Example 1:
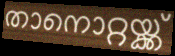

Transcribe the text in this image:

താനൊറ്റയ്ക്ക്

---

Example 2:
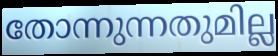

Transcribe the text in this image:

തോന്നുന്നതുമില്ല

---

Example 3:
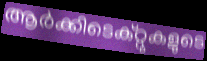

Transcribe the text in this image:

ആർക്കിടെക്റ്റുകളുടെ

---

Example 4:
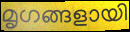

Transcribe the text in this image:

മൃഗങ്ങളായി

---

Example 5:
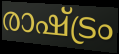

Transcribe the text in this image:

രാഷ്ട്രം